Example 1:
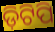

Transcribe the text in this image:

ଡ଼ିଟିପି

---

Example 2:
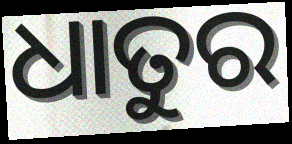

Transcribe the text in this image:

ଧାତୁର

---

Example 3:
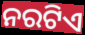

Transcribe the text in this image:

ନରଟିଏ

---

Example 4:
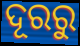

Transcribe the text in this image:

ଦୂରରୁ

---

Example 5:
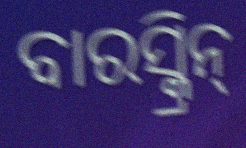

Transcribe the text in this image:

ବାରସ୍କ୍ରିନ୍